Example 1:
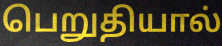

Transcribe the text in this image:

பெறுதியால்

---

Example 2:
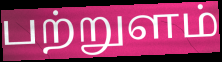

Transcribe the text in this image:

பற்றுளம்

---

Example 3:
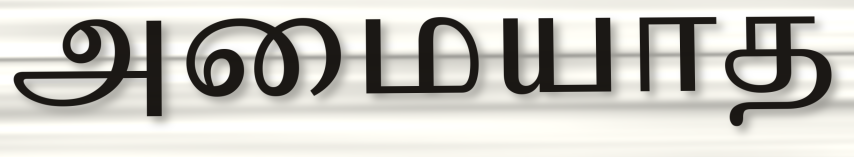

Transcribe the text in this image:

அமையாத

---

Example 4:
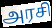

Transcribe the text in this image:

அரசி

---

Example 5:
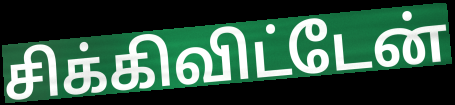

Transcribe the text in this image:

சிக்கிவிட்டேன்